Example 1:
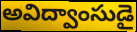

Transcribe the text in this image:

అవిద్వాంసుడై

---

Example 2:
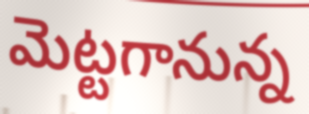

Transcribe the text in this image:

మెట్టగానున్న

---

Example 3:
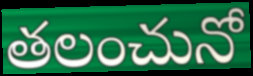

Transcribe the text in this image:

తలంచునో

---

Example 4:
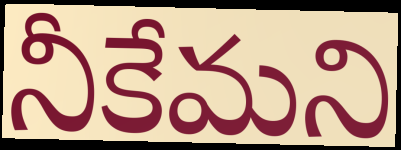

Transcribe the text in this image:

నీకేమని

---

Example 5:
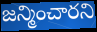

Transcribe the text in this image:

జన్మించారని